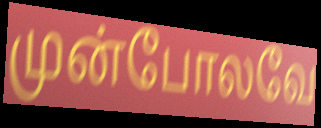
முன்போலவே